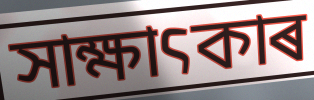
সাক্ষাৎকাৰ